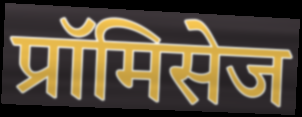
प्रॉमिसेज